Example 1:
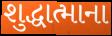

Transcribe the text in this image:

શુદ્ધાત્માના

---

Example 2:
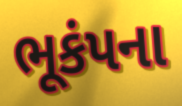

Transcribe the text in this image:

ભૂકંપના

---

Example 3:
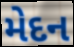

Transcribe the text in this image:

મેદન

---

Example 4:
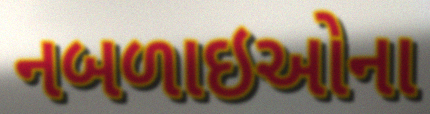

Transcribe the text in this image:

નબળાઇઓના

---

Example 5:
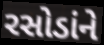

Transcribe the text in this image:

રસોડાંને